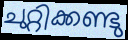
ചുറ്റിക്കണ്ടു